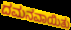
ದಮನವಾಯಿತು